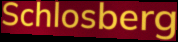
Schlosberg